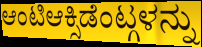
ಆಂಟಿಆಕ್ಸಿಡೆಂಟ್ಗಳನ್ನು